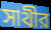
সাথীর